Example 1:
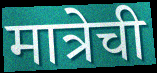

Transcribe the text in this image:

मात्रेची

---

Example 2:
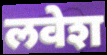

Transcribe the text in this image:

लवेश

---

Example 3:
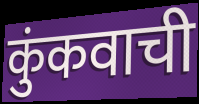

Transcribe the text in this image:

कुंकवाची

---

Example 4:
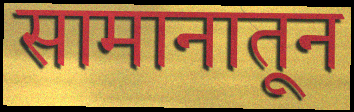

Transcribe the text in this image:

सामानातून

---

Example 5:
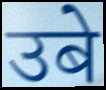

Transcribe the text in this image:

उबे